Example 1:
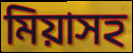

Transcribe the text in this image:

মিয়াসহ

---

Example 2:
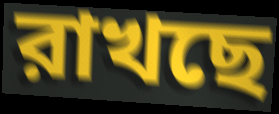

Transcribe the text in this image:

রাখছে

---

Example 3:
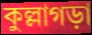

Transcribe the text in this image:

কুল্লাগড়া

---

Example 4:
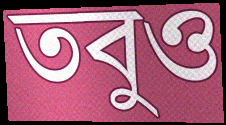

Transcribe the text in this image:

তবুও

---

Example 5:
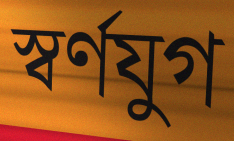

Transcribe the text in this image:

স্বর্ণযুগ